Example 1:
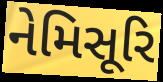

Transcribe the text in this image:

નેમિસૂરિ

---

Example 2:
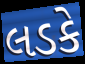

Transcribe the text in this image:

લડકે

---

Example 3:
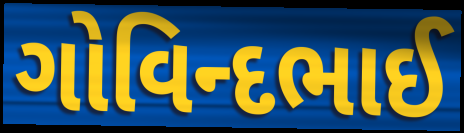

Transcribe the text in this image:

ગોવિન્દભાઈ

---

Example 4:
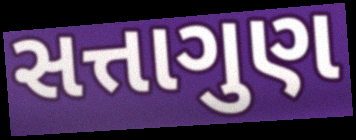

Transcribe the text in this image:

સત્તાગુણ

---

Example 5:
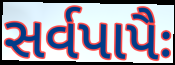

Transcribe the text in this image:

સર્વપાપૈઃ